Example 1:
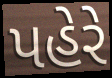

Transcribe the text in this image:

પહેરે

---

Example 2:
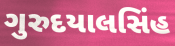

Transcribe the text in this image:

ગુરુદયાલસિંહ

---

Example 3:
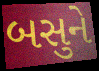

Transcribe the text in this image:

બસુને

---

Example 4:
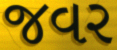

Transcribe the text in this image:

જવર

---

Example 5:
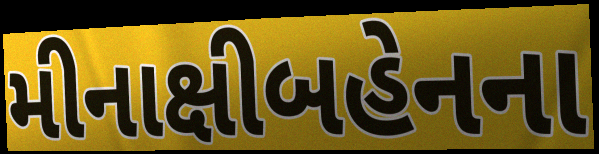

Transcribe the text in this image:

મીનાક્ષીબહેનના